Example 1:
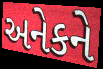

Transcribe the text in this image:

અનેકને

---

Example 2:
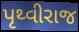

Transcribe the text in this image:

પૃથ્વીરાજ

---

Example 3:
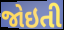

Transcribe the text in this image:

જોઇતી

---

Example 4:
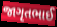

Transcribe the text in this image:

જાગૃતભાઈ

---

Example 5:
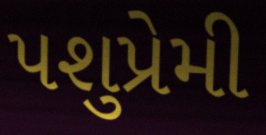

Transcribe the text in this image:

પશુપ્રેમી